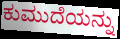
ಕುಮುದೆಯನ್ನು